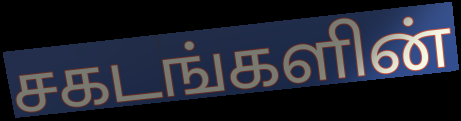
சகடங்களின்